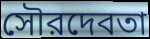
সৌরদেবতা